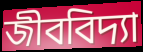
জীববিদ্যা